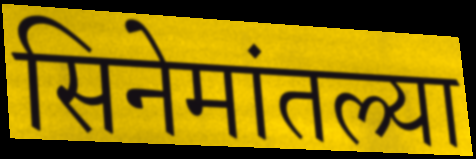
सिनेमांतल्या